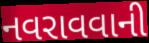
નવરાવવાની